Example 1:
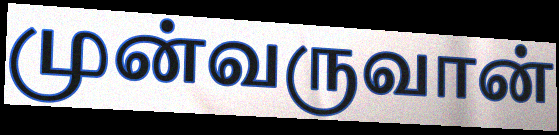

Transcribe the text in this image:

முன்வருவான்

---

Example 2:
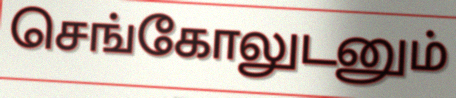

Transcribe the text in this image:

செங்கோலுடனும்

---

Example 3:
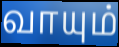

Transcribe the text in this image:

வாயும்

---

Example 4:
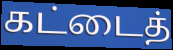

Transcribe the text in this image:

கட்டைத்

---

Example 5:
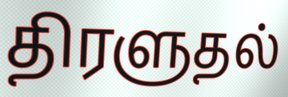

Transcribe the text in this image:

திரளுதல்